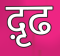
द़ृढ